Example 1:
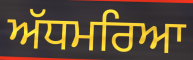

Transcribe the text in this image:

ਅੱਧਮਰਿਆ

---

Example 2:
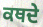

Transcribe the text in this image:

ਕਥਦੇ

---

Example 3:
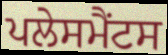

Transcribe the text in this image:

ਪਲੇਸਮੈਂਟਸ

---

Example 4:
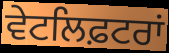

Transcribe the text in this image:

ਵੇਟਲਿਫ਼ਟਰਾਂ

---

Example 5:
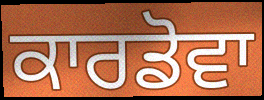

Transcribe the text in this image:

ਕਾਰਡੋਵਾ